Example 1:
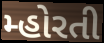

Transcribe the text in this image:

મ્હોરતી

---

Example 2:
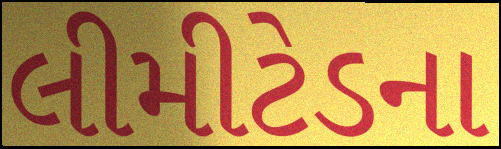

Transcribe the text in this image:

લીમીટેડના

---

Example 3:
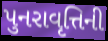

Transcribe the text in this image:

પુનરાવૃત્તિની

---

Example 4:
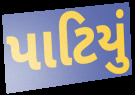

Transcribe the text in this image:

પાટિયું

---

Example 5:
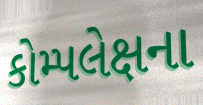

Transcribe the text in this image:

કોમ્પલેક્ષના